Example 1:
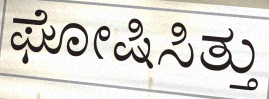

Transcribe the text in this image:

ಘೋಷಿಸಿತ್ತು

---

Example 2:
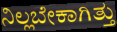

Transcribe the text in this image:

ನಿಲ್ಲಬೇಕಾಗಿತ್ತು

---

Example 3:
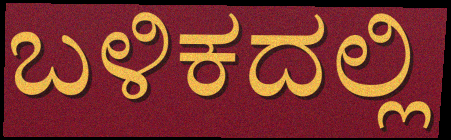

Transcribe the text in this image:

ಬಳಿಕದಲ್ಲಿ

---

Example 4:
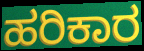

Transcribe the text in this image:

ಹರಿಕಾರ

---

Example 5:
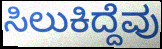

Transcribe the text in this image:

ಸಿಲುಕಿದ್ದೆವು